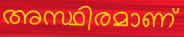
അസ്ഥിരമാണ്